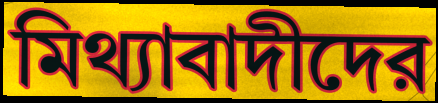
মিথ্যাবাদীদের